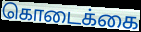
கொடைக்கை